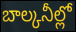
బాల్కనీల్లో